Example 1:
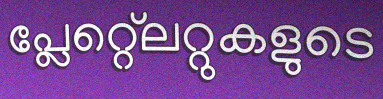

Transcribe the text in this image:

പ്ലേറ്റ്ലെറ്റുകളുടെ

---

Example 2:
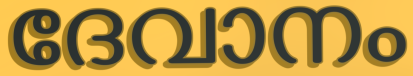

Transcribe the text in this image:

ദേവാനം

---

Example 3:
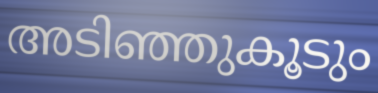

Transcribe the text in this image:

അടിഞ്ഞുകൂടും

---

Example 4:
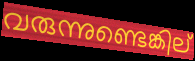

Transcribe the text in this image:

വരുന്നുണ്ടെങ്കില്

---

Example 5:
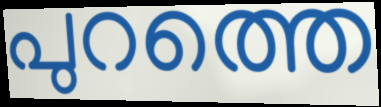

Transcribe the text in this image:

പുറത്തെ